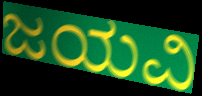
ಜಯವಿ